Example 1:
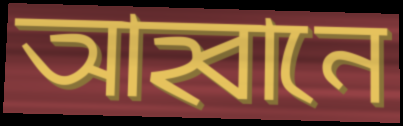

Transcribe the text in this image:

আহ্বানে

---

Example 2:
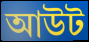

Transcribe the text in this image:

আউট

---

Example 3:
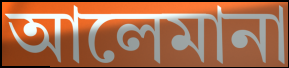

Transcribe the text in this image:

আলেমানা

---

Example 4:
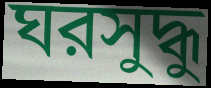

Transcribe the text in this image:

ঘরসুদ্ধু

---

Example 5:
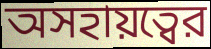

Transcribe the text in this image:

অসহায়ত্বের